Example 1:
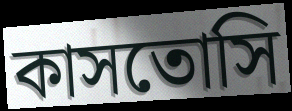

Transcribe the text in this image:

কাসতোসি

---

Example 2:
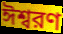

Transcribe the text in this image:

ঈশ্বরণ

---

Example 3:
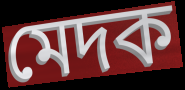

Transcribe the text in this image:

মেদক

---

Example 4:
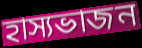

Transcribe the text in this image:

হাস্যভাজন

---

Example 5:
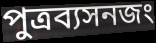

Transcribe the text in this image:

পুত্রব্যসনজং